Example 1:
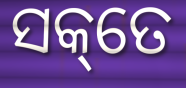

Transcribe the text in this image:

ସକ୍‌ତେ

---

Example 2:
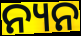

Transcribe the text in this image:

ନ୍ୟନ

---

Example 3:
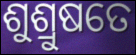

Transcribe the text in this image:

ଶୁଶ୍ରୁଷତେ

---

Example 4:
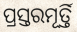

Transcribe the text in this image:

ପ୍ରସ୍ତରମୂର୍ତ୍ତି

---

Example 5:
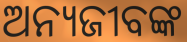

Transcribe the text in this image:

ଅନ୍ୟଜୀବଙ୍କ